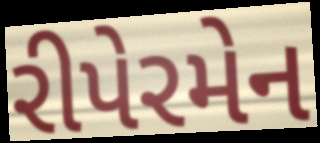
રીપેરમેન